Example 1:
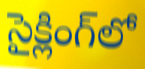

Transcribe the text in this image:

సైక్లింగ్‌లో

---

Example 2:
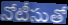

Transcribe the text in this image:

నోటీసుతో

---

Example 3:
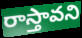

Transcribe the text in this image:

రాస్తావని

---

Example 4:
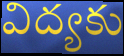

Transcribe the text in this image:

విద్యకు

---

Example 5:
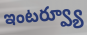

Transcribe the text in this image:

ఇంటర్వ్యూ